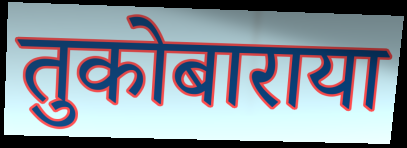
तुकोबाराया